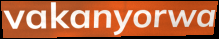
vakanyorwa